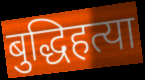
बुद्धिहत्या